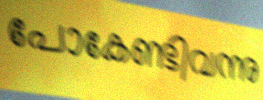
പോകേണ്ടിവന്നു